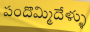
పందొమ్మిదేళ్ళు